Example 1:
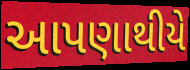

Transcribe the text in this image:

આપણાથીયે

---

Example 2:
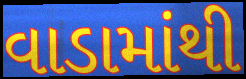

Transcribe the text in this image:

વાડામાંથી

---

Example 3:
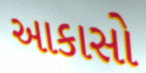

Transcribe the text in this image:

આકાસો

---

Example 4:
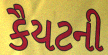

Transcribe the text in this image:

કૈયટની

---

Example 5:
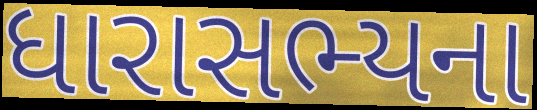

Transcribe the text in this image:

ધારાસભ્યના